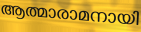
ആത്മാരാമനായി